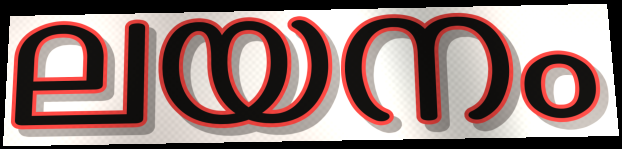
ലയനം